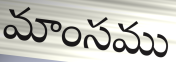
మాంసము